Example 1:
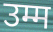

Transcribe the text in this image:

उम्म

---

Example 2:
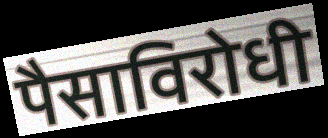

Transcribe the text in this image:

पैसाविरोधी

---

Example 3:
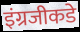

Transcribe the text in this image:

इंग्रजीकडे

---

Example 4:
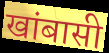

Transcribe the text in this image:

खांबासी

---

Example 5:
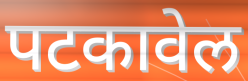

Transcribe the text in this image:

पटकावेल